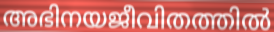
അഭിനയജീവിതത്തിൽ